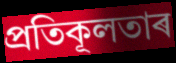
প্ৰতিকূলতাৰ